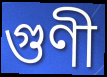
গুণী